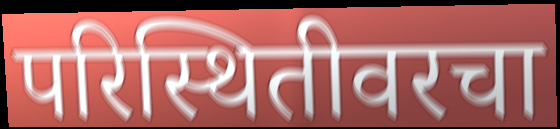
परिस्थितीवरचा